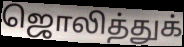
ஜொலித்துக்